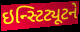
ઇન્સ્ટિટ્યૂટને